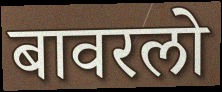
बावरलो